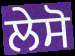
ਲੇਸੋ